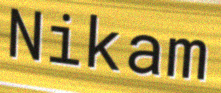
Nikam